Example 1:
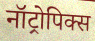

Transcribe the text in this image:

नॉट्रोपिक्स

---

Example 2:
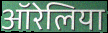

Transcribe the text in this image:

ऑरेलिया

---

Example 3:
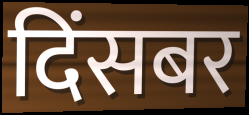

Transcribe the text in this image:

दिंसबर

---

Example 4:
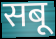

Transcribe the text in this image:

सबू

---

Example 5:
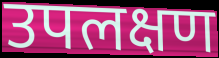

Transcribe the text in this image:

उपलक्षण